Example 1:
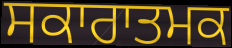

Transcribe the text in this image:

ਸਕਾਰਾਤਮਕ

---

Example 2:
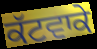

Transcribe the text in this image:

ਕੱਟਵਾਕੇ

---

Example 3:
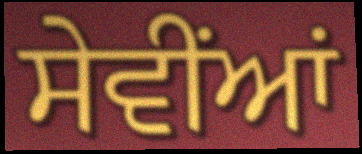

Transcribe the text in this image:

ਸੇਵੀਂਆਂ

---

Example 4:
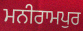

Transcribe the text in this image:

ਮਨੀਰਾਮਪੁਰ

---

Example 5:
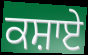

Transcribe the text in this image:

ਕਸ਼ਾਏ